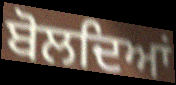
ਬੋਲਦਿਆਂ